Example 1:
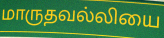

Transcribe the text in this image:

மாருதவல்லியை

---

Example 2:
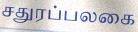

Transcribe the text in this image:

சதுரப்பலகை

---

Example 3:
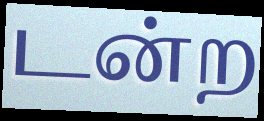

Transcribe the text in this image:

டன்ற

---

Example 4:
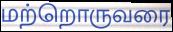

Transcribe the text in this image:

மற்றொருவரை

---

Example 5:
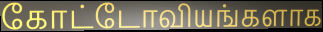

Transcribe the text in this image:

கோட்டோவியங்களாக